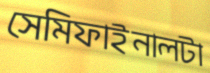
সেমিফাইনালটা